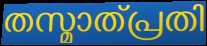
തസ്മാത്പ്രതി